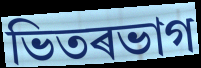
ভিতৰভাগ